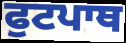
ਫੁਟਪਾਥ